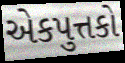
એકપુત્તકો